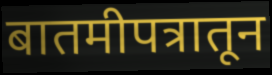
बातमीपत्रातून